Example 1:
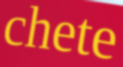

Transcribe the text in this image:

chete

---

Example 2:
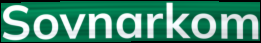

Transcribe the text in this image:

Sovnarkom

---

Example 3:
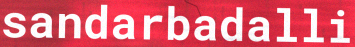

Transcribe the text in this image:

sandarbadalli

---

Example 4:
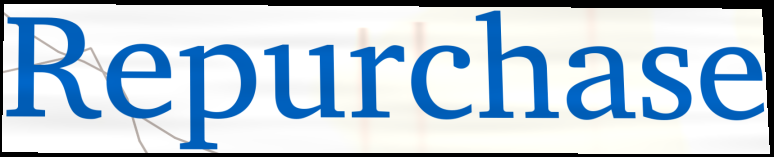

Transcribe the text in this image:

Repurchase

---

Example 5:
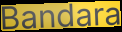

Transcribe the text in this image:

Bandara